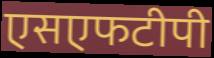
एसएफटीपी